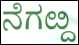
ನೆಗೞ್ದ